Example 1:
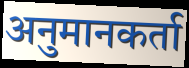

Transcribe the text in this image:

अनुमानकर्ता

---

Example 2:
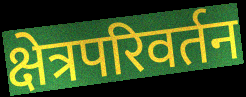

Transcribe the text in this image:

क्षेत्रपरिवर्तन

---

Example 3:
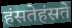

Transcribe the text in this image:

हंसतेहंसते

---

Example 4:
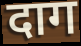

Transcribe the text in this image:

दाग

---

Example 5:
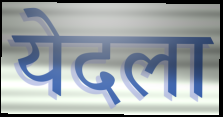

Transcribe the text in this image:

येदला